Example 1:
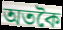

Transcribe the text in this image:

অতকৈ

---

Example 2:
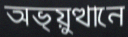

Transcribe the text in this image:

অভ্য়ুত্থানে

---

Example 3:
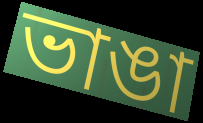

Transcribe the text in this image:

ভাঙা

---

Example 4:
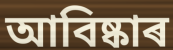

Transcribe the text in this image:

আবিষ্কাৰ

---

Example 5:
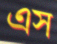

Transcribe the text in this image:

এস